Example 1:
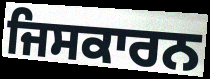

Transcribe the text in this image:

ਜਿਸਕਾਰਨ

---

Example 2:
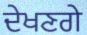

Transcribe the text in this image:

ਦੇਖਣਗੇ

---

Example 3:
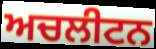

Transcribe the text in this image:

ਅਚਲੀਟਨ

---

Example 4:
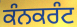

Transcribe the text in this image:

ਕੰਨਕਰੰਟ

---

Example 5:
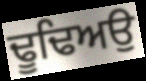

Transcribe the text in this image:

ਢੂਢਿਅਉ